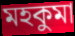
মহকুমা